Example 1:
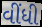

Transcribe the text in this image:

વીંધી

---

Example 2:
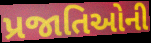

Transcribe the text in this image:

પ્રજાતિઓની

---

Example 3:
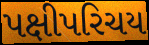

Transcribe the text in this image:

પક્ષીપરિચય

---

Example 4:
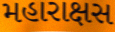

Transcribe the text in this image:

મહારાક્ષસ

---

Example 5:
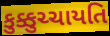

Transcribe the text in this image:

કુક્કુચ્ચાયતિ